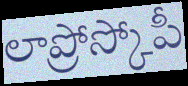
లాప్రోస్కోపీ